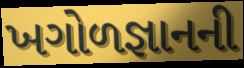
ખગોળજ્ઞાનની